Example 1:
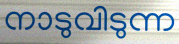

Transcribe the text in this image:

നാടുവിടുന്ന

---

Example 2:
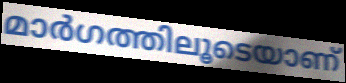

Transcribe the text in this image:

മാർഗത്തിലൂടെയാണ്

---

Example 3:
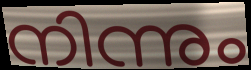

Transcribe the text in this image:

നിന്നും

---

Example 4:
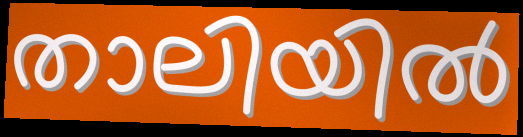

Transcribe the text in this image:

താലിയിൽ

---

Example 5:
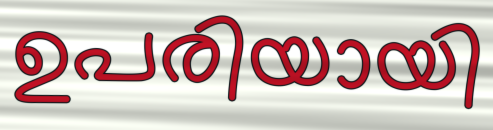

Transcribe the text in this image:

ഉപരിയായി